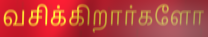
வசிக்கிறார்களோ